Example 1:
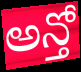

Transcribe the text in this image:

అన్తో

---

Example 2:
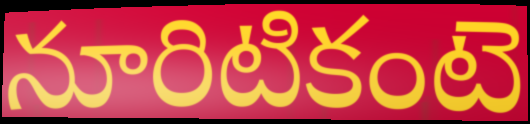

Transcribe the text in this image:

నూరిటికంటె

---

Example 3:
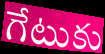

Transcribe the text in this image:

గేటుకు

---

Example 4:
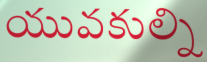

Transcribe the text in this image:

యువకుల్ని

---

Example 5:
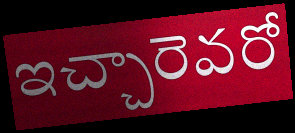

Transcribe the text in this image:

ఇచ్చారెవరో